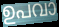
ഉപവാ